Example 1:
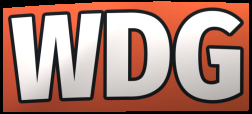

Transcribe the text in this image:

WDG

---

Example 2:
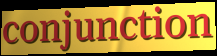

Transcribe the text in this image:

conjunction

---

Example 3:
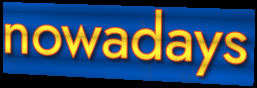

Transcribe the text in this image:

nowadays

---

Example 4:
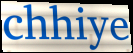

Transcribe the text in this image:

chhiye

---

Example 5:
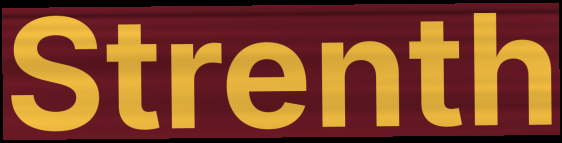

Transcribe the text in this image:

Strenth